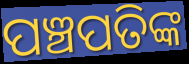
ପଞ୍ଚପତିଙ୍କ